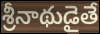
శ్రీనాథుడైతే